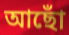
আছোঁ